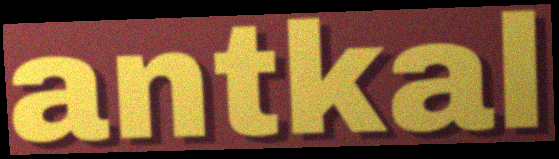
antkal